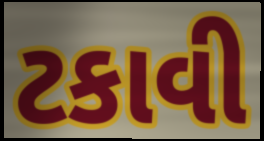
ટકાવી